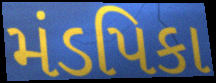
મંડપિકા